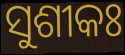
ସୁଶୀକଃ